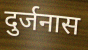
दुर्जनास